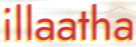
illaatha